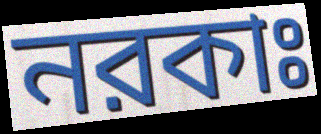
নরকাঃ